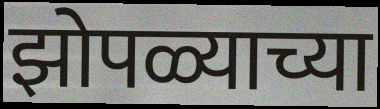
झोपळ्याच्या